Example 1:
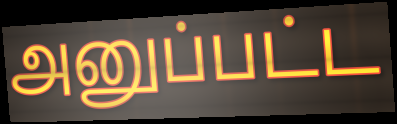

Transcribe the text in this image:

அனுப்பட்ட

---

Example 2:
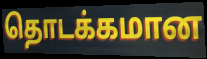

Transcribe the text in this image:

தொடக்கமான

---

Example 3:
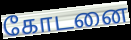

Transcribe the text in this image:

கோடனை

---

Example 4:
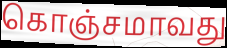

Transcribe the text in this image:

கொஞ்சமாவது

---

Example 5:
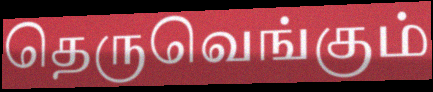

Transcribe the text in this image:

தெருவெங்கும்